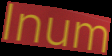
Inum